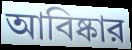
আবিষ্কার